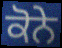
ਕੋਨੇ